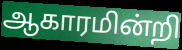
ஆகாரமின்றி